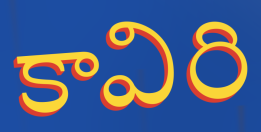
కావిరి